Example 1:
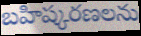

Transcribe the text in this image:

బహిష్కరణలను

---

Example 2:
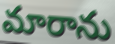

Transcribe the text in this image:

మారాను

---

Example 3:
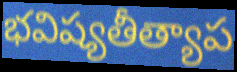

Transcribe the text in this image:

భవిష్యతీత్యాప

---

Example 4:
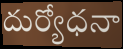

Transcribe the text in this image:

దుర్యోధనా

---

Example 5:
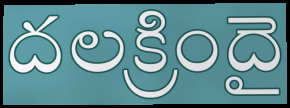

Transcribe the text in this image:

దలక్రిందై